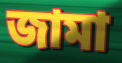
জামা